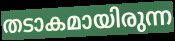
തടാകമായിരുന്ന